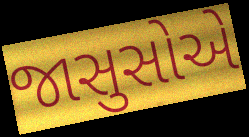
જાસુસોએ